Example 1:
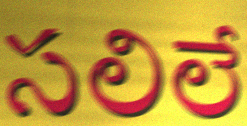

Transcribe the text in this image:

సలిలే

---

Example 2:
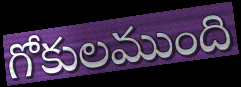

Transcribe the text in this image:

గోకులముంది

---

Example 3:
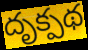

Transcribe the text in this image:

దృక్పథ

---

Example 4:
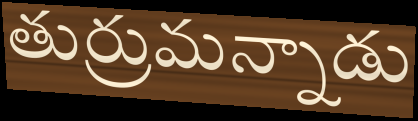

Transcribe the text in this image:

తుర్రుమన్నాడు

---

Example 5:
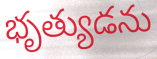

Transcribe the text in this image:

భృత్యుడను